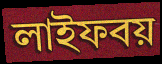
লাইফবয়